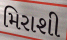
મિરાશી